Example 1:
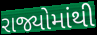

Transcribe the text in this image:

રાજ્યોમાંથી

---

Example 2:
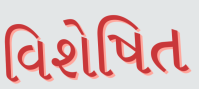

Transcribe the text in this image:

વિશેષિત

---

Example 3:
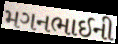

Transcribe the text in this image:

મગનભાઈની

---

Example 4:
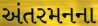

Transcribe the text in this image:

અંતરમનના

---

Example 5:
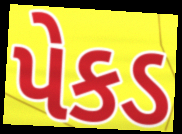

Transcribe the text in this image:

પેકડ